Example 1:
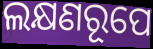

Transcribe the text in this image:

ଲକ୍ଷଣରୂପେ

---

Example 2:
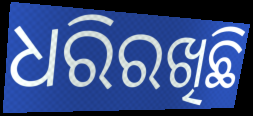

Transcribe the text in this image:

ଧରିରଖିଛି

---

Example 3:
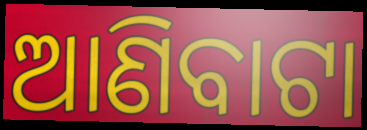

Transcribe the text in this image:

ଆଣିବାଟା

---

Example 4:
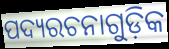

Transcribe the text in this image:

ପଦ୍ୟରଚନାଗୁଡ଼ିକ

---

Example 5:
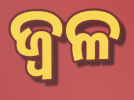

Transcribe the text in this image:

ଜ୍ୱଳ